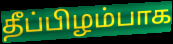
தீப்பிழம்பாக